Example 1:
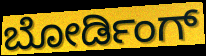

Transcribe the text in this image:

ಬೋರ್ಡಿಂಗ್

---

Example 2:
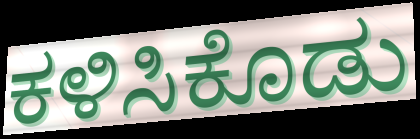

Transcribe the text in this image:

ಕಳಿಸಿಕೊಡು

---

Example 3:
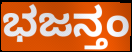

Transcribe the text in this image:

ಭಜನ್ತಂ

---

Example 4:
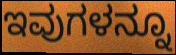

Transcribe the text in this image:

ಇವುಗಳನ್ನೂ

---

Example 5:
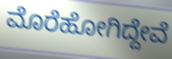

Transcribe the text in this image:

ಮೊರೆಹೋಗಿದ್ದೇವೆ